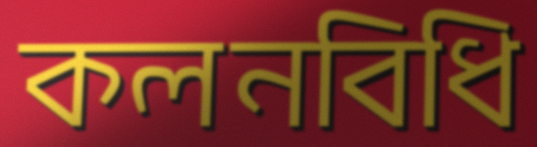
কলনবিধি